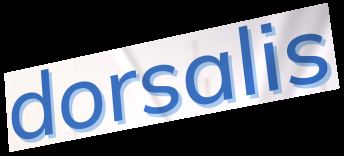
dorsalis